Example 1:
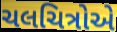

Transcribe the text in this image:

ચલચિત્રોએ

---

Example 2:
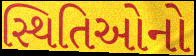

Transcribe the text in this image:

સ્થિતિઓનો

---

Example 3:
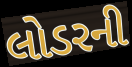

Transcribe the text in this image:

લોડરની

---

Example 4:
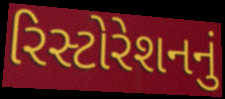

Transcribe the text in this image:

રિસ્ટોરેશનનું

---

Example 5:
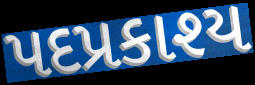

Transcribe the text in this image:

પદપ્રકાશ્ય